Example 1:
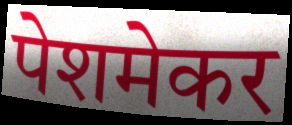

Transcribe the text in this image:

पेशमेकर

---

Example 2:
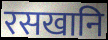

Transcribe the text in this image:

रसखानि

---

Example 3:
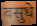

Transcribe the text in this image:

वसुधे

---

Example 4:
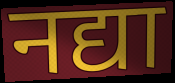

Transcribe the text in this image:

नद्या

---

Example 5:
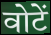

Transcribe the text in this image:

वोटें